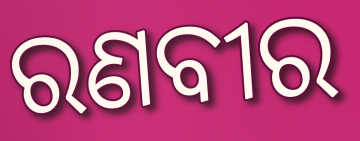
ରଣବୀର